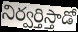
నిర్వర్తిస్తాడో